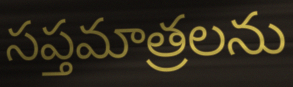
సప్తమాత్రలను